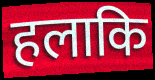
हलाकि